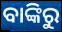
ବାଙ୍କିରୁ